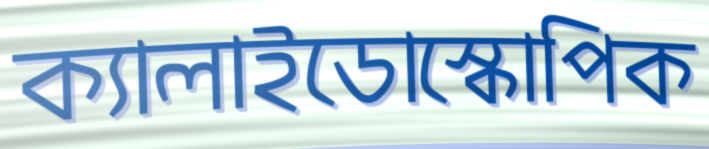
ক্যালাইডোস্কোপিক